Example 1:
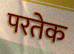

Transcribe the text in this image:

परतेक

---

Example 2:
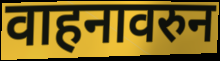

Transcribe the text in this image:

वाहनावरुन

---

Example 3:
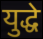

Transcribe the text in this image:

युद्धे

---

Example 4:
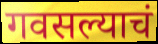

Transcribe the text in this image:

गवसल्याचं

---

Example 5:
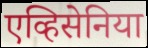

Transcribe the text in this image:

एव्हिसेनिया